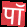
पॉ